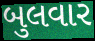
બુલવાર